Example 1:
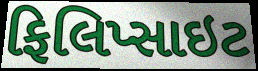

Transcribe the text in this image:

ફિલિપ્સાઇટ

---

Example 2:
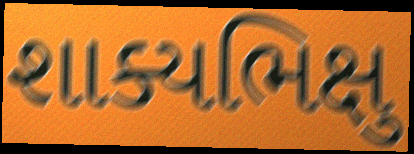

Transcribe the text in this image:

શાક્યભિક્ષુ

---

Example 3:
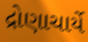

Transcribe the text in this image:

દ્રોણાચાર્યે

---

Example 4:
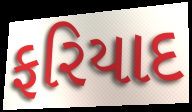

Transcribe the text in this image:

ફરિયાદ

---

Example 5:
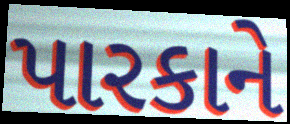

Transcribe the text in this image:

પારકાને